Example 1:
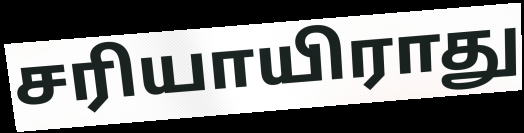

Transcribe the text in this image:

சரியாயிராது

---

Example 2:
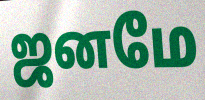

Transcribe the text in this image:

ஜனமே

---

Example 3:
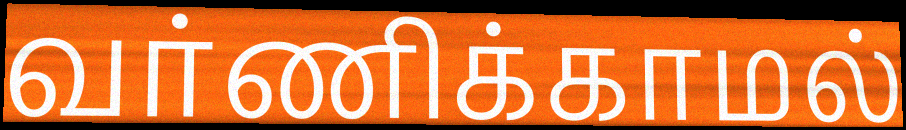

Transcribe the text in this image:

வர்ணிக்காமல்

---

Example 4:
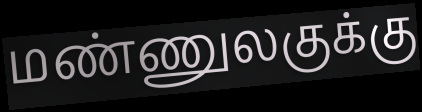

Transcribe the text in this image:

மண்ணுலகுக்கு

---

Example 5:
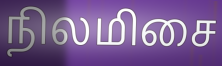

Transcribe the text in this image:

நிலமிசை